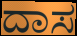
ದಾಸ